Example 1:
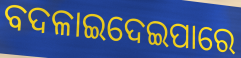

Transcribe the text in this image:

ବଦଳାଇଦେଇପାରେ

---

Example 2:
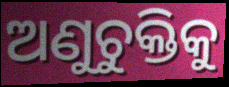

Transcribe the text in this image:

ଅଣୁଚୁକ୍ତିକୁ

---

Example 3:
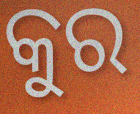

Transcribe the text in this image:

କୁର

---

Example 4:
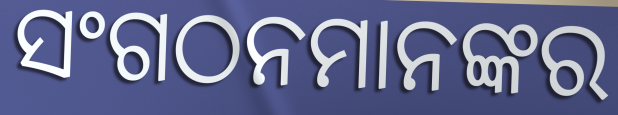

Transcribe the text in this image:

ସଂଗଠନମାନଙ୍କର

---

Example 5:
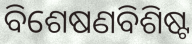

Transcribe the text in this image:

ବିଶେଷଣବିଶିଷ୍ଟ